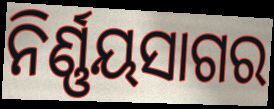
ନିର୍ଣ୍ଣୟସାଗର